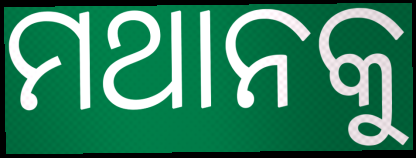
ମଥାନକୁ